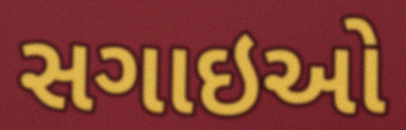
સગાઇઓ